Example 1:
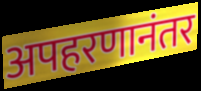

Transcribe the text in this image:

अपहरणानंतर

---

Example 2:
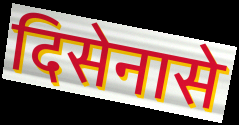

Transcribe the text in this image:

दिसेनासे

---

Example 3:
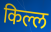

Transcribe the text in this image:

किल्ल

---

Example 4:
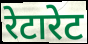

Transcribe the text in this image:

रेटारेट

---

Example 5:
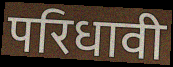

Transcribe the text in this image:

परिधावी